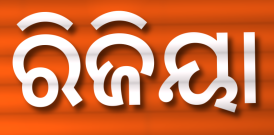
ରିଜିୟା